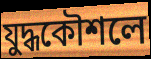
যুদ্ধকৌশলে